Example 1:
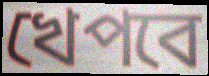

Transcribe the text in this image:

খেপবে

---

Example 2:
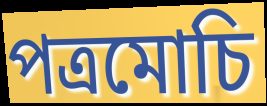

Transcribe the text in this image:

পত্রমোচি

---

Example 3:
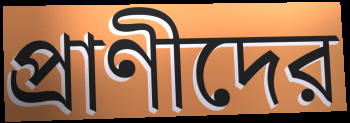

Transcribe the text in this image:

প্রাণীদের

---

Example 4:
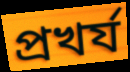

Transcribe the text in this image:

প্রখর্য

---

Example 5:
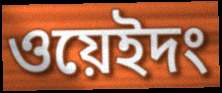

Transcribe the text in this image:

ওয়েইদং